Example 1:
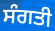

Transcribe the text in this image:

ਸੰਗਤੀ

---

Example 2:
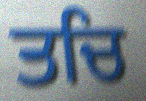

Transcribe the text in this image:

ਤਚਿ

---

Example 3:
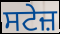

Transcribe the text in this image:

ਸਟੇਜ਼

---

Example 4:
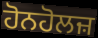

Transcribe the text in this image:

ਹੋਨਹੋਲਜ਼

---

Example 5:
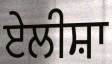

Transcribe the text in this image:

ਏਲੀਸ਼ਾ